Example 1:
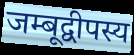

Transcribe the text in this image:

जम्बूद्वीपस्य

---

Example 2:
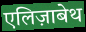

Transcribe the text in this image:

एलिज़ाबेथ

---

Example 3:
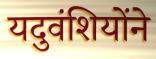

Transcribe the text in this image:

यदुवंशियोंने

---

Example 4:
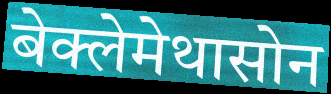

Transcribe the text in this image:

बेक्लेमेथासोन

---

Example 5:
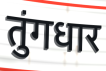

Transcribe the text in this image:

तुंगधार